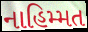
નાહિમ્મત